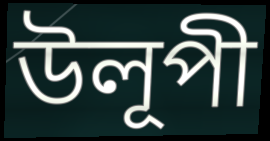
উলূপী